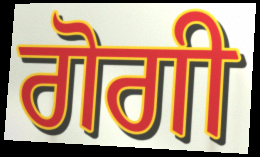
ਗੋਗੀ